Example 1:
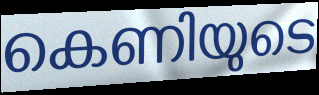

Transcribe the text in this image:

കെണിയുടെ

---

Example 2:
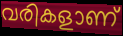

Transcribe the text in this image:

വരികളാണ്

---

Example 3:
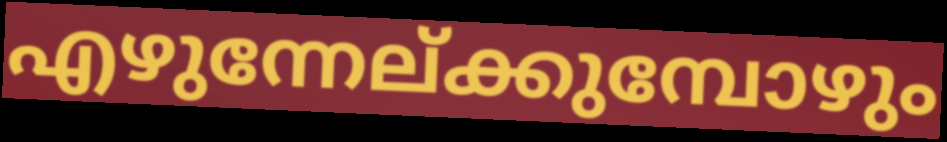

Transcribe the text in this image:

എഴുന്നേല്ക്കുമ്പോഴും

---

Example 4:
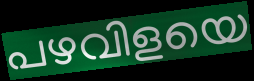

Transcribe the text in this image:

പഴവിളയെ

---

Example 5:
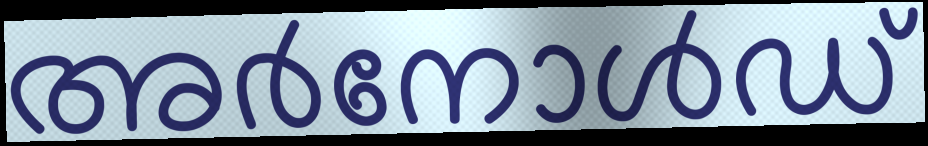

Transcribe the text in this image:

അർനോൾഡ്